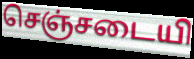
செஞ்சடையி